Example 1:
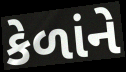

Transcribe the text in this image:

કેળાંને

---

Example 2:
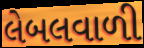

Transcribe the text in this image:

લેબલવાળી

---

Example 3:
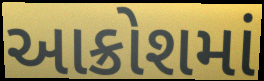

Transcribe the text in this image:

આક્રોશમાં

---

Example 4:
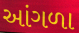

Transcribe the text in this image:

આંગળા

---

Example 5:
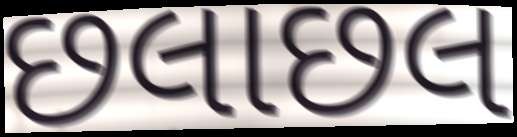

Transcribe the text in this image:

છલાછલ